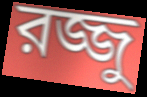
রজ্জু